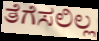
ತೆಗೆಸಲಿಲ್ಲ